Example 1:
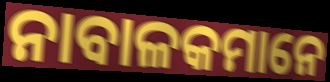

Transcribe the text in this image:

ନାବାଳକମାନେ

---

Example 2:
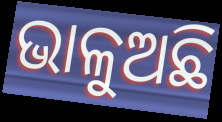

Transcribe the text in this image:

ଭାଳୁଅଛି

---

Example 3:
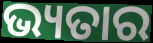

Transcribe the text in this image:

ଭ୍ୟତାର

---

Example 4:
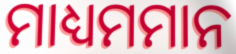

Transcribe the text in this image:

ମାଧ୍ୟମମାନ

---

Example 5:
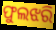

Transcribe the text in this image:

ଫୁଲଝରି